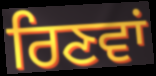
ਰਿਣਵਾਂ